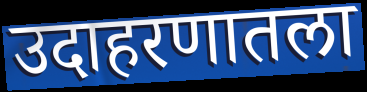
उदाहरणातला